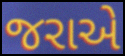
જરાએ